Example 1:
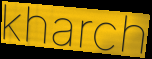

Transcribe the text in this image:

kharch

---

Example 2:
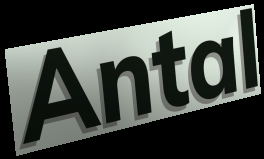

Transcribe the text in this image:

Antal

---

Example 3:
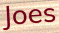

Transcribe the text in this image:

Joes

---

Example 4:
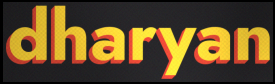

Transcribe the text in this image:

dharyan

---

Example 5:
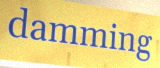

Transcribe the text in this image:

damming